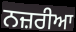
ਨਜ਼ਰੀਆ